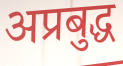
अप्रबुद्ध